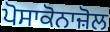
ਪੋਸਾਕੋਨਾਜ਼ੋਲ